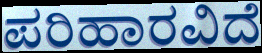
ಪರಿಹಾರವಿದೆ